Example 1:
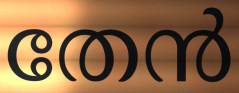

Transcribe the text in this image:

തേൻ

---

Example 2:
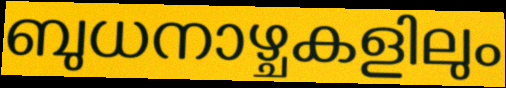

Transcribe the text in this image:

ബുധനാഴ്ചകളിലും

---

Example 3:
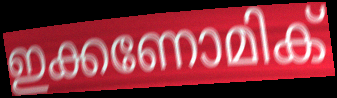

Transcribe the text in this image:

ഇക്കണോമിക്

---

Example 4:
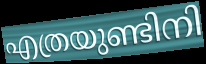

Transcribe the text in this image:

എത്രയുണ്ടിനി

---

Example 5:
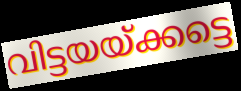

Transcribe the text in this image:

വിട്ടയയ്ക്കട്ടെ